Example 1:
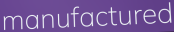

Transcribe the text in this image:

manufactured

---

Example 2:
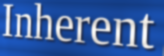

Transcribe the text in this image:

Inherent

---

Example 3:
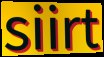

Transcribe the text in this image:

siirt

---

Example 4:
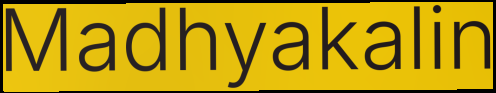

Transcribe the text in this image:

Madhyakalin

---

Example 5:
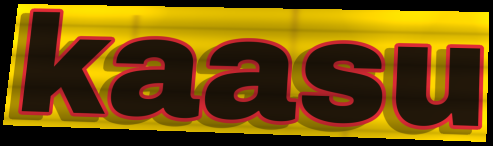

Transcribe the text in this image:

kaasu